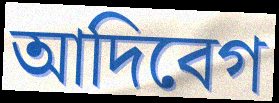
আদিবেগ